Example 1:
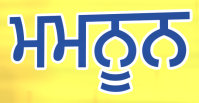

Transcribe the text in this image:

ਮਮਨੂਨ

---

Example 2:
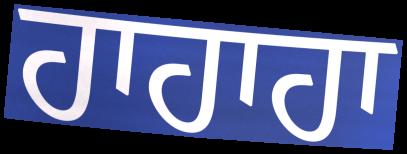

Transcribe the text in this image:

ਹਾਹਾਹਾ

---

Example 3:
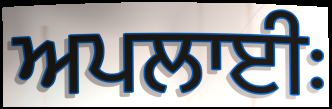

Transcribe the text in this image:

ਅਪਲਾਈਃ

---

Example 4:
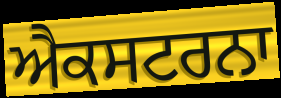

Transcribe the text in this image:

ਐਕਸਟਰਨਾ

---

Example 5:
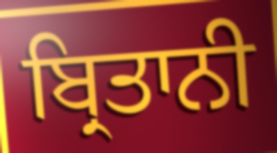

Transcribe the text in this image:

ਬ੍ਰਿਤਾਨੀ